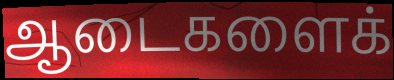
ஆடைகளைக்